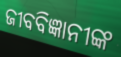
ଜୀବବିଜ୍ଞାନୀଙ୍କ